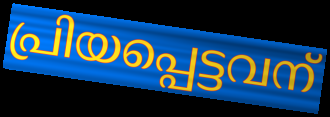
പ്രിയപ്പെട്ടവന്